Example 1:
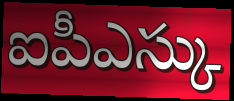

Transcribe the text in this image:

ఐపీఎస్కు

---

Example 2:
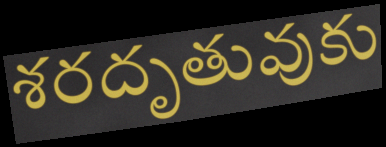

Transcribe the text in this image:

శరదృతువుకు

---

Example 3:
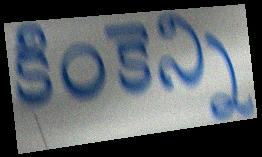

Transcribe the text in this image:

కింకెన్ని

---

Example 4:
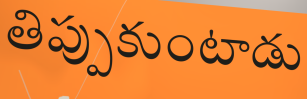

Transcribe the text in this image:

తిప్పుకుంటాడు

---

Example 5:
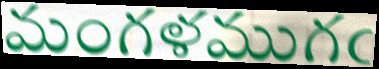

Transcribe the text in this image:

మంగళముగఁ